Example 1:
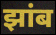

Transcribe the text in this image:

झांब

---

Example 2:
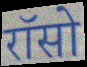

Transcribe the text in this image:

रॉसो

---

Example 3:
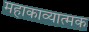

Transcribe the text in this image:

महाकाव्‍यात्‍मक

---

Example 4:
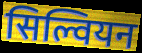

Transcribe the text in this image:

सिल्वियन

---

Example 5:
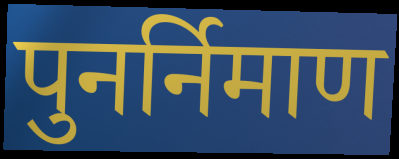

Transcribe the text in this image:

पुनर्निमाण